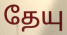
தேயு